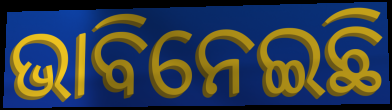
ଭାବିନେଇଛି